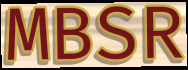
MBSR